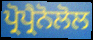
ਪ੍ਰੋਪ੍ਰੈਨੋਲੋਲ